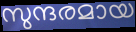
സുന്ദരമായ